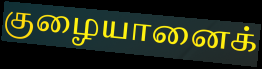
குழையானைக்